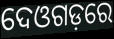
ଦେଓଗଡ଼ରେ